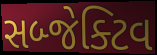
સબ્જેક્ટિવ